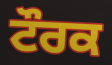
ਟੌਰਕ